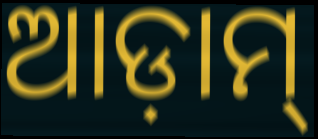
ଆଡ଼ାମ୍